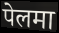
पेलमा